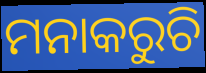
ମନାକରୁଚି